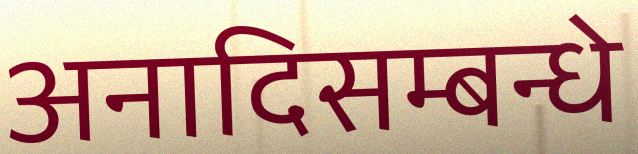
अनादिसम्बन्धे